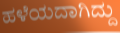
ಹಳೆಯದಾಗಿದ್ದು